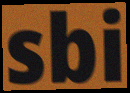
sbi